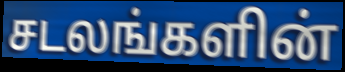
சடலங்களின்